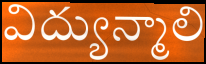
విద్యున్మాలి